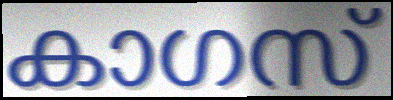
കാഗസ്